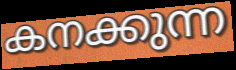
കനക്കുന്ന